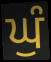
ਘੁੰ